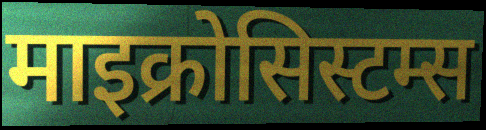
माइक्रोसिस्टम्स